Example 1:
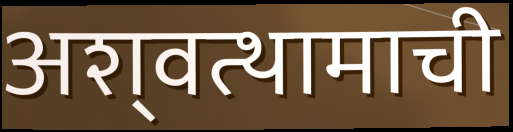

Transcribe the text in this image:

अश्वत्थामाची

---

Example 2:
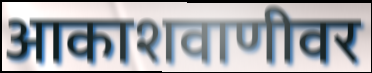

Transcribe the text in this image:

आकाशवाणीवर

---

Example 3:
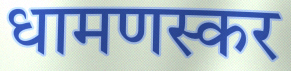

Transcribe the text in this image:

धामणस्कर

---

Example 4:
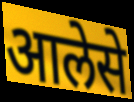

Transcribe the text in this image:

आलेसे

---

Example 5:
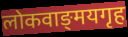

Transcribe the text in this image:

लोकवाङ्मयगृह